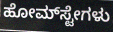
ಹೋಮ್‌ಸ್ಟೇಗಳು